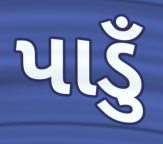
પાડુઁ